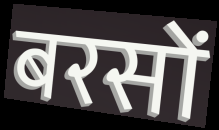
बरसों